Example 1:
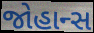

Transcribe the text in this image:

જોહાન્સ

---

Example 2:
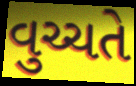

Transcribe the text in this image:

વુચ્ચતે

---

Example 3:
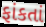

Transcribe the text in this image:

ફાંકતાં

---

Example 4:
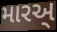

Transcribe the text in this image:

મારઅ્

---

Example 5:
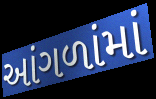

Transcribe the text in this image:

આંગળાંમાં